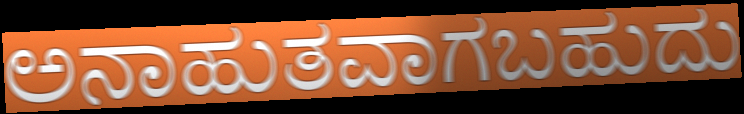
ಅನಾಹುತವಾಗಬಹುದು